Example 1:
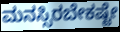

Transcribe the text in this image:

ಮನಸ್ಸಿರಬೇಕಷ್ಟೇ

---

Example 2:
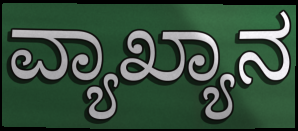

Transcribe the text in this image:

ವ್ಯಾಖ್ಯಾನ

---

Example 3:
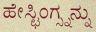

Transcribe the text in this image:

ಹೇಸ್ಟಿಂಗ್ಸ್ನನ್ನು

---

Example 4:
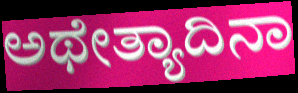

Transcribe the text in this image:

ಅಥೇತ್ಯಾದಿನಾ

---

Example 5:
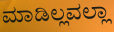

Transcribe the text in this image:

ಮಾಡಿಲ್ಲವಲ್ಲಾ